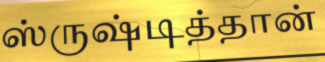
ஸ்ருஷ்டித்தான்